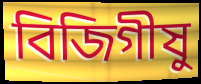
বিজিগীষু